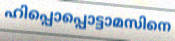
ഹിപ്പൊപ്പൊട്ടാമസിനെ